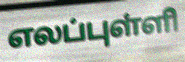
எலப்புள்ளி